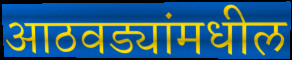
आठवड्यांमधील